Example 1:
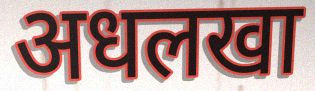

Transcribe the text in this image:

अधलखा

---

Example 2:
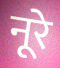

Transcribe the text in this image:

नूरे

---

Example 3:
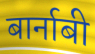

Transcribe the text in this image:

बार्नाबी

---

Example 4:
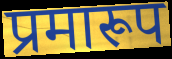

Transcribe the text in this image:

प्रमारूप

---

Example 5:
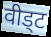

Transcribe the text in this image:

वीड्ट